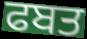
ਫਬਤ